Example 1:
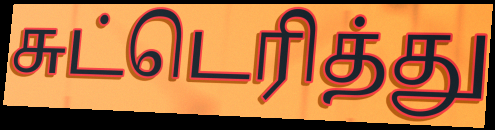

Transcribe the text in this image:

சுட்டெரித்து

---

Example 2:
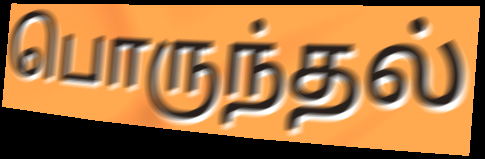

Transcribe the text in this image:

பொருந்தல்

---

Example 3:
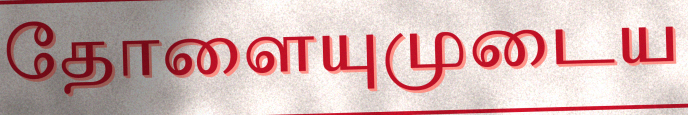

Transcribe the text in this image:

தோளையுமுடைய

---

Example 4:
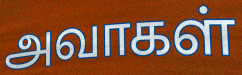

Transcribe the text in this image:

அவாகள்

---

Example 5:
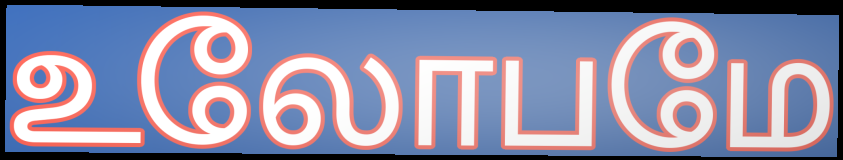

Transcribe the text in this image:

உலோபமே